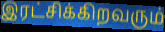
இரட்சிக்கிறவரும்